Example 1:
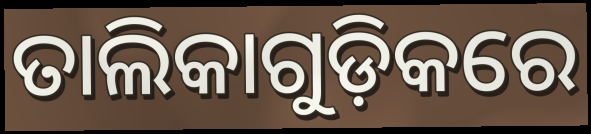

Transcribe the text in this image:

ତାଲିକାଗୁଡ଼ିକରେ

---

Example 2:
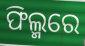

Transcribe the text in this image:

ଫିଲ୍ମରେ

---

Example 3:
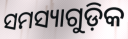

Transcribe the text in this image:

ସମସ୍ୟାଗୁଡ଼ିକ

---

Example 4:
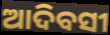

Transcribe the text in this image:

ଆଦିବସୀ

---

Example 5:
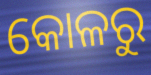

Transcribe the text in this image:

କୋଳରୁ